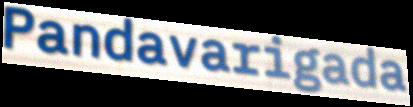
Pandavarigada